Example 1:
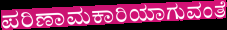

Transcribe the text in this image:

ಪರಿಣಾಮಕಾರಿಯಾಗುವಂತೆ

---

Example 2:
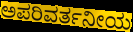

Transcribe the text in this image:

ಅಪರಿವರ್ತನೀಯ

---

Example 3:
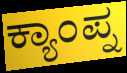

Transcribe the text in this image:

ಕ್ಯಾಂಪ್ನ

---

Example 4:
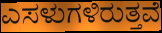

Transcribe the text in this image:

ಎಸಳುಗಳಿರುತ್ತವೆ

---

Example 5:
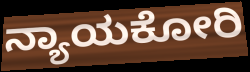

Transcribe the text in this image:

ನ್ಯಾಯಕೋರಿ